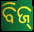
ବିଜ୍